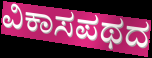
ವಿಕಾಸಪಥದ